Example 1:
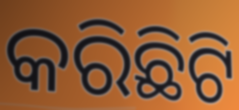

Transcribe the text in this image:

କରିଛିଟି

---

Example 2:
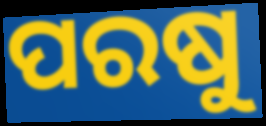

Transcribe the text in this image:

ପରଷୁ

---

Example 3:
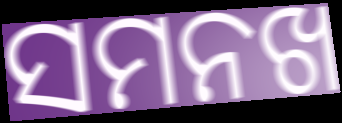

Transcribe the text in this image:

ସମନଖ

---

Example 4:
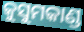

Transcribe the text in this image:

କୁସୁମକାଣ୍ଡ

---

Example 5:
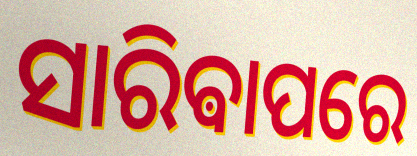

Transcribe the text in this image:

ସାରିଵାପରେ